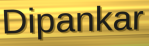
Dipankar